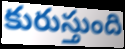
కురుస్తుంది